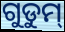
ଗୁଡୁମ୍